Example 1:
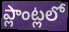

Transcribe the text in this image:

ప్లాంట్లలో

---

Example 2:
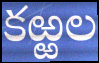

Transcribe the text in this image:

కఱ్ఱల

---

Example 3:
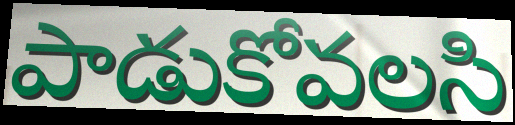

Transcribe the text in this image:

పాడుకోవలసి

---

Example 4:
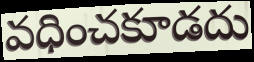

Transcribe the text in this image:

వధించకూడదు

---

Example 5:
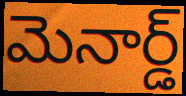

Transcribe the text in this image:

మెనార్డ్